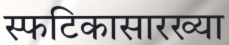
स्फटिकासारख्या